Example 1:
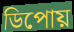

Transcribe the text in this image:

ডিপোয়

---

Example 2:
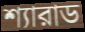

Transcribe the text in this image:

শ্যারাড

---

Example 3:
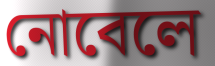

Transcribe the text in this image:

নোবেলে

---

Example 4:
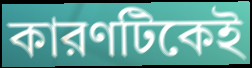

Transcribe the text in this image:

কারণটিকেই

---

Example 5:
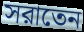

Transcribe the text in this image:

সরাতেন